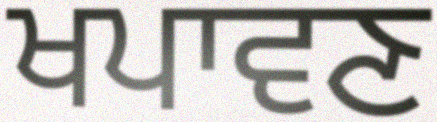
ਖਪਾਵਣ